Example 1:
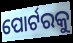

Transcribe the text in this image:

ପୋର୍ଟରକୁ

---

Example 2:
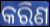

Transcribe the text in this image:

କରିଣ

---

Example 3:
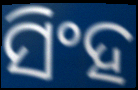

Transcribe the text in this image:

ସିଂହ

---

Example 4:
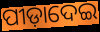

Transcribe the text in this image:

ପୀଡ଼ାଦେଇ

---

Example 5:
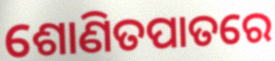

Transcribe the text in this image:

ଶୋଣିତପାତରେ